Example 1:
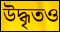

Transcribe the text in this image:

উদ্ধৃতও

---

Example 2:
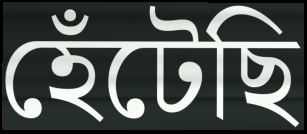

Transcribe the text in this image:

হেঁটেছি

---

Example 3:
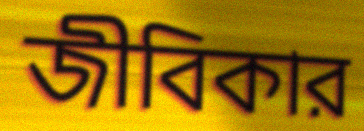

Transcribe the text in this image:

জীবিকার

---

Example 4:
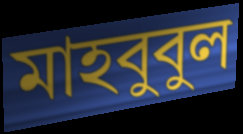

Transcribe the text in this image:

মাহবুবুল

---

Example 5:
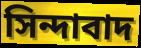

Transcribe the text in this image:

সিন্দাবাদ